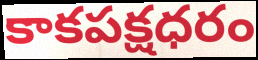
కాకపక్షధరం